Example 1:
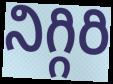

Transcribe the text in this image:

నిగ్గిరి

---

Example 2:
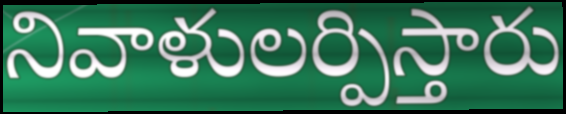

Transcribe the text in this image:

నివాళులర్పిస్తారు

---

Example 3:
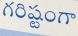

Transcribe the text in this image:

గరిష్టంగా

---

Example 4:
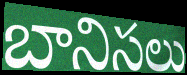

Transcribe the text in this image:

బానిసలు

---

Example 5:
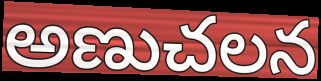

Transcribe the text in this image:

అణుచలన